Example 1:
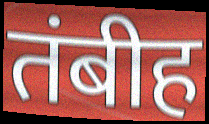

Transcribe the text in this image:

तंबीह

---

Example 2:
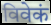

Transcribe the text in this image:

विवेकं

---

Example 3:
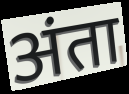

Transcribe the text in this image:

अंता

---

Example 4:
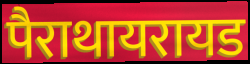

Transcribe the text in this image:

पैराथायरायड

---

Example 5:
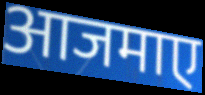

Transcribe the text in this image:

आजमाए